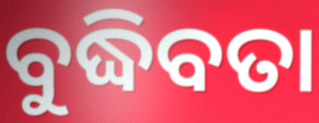
ବୁଦ୍ଧିବତା